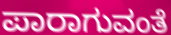
ಪಾರಾಗುವಂತೆ